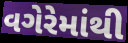
વગેરેમાંથી